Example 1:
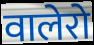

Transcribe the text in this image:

वालेरो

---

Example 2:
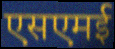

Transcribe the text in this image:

एसएमई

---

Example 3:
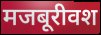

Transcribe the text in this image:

मजबूरीवश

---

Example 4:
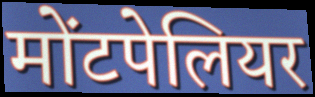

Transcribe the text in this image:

मोंटपेलियर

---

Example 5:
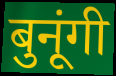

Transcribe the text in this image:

बुनूंगी